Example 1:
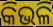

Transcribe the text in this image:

କିଭଳି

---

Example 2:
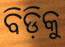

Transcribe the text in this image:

ବିଡ଼ିକୁ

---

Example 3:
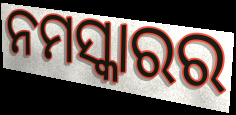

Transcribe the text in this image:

ନମସ୍କାରର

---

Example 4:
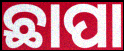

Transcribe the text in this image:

ଛାପା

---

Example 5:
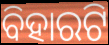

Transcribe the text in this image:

ବିହାରଟି